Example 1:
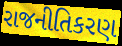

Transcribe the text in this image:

રાજનીતિકરણ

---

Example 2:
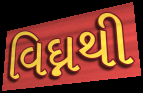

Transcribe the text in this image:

વિઘ્નથી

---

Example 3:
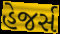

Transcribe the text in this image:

હેજર્સ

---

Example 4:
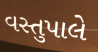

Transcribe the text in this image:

વસ્તુપાલે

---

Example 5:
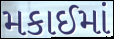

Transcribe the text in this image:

મકાઈમાં